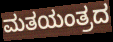
ಮತಯಂತ್ರದ